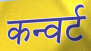
कन्वर्ट